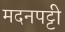
मदनपट्टी